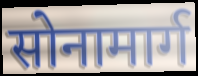
सोनामार्ग